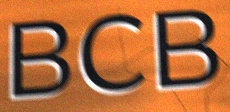
BCB